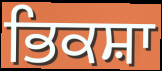
ਭਿਕਸ਼ਾ